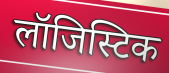
लॉजिस्टिक